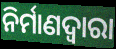
ନିର୍ମାଣଦ୍ୱାରା